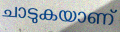
ചാടുകയാണ്